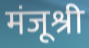
मंजूश्री